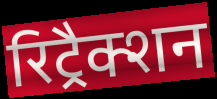
रिट्रैक्शन